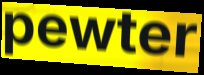
pewter